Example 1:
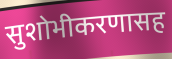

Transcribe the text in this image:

सुशोभीकरणासह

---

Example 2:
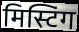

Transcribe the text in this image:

मिस्टिंग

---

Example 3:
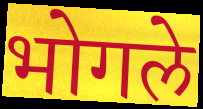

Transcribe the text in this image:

भोगले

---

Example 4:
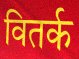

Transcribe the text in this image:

वितर्क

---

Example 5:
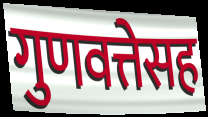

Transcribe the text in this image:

गुणवत्तेसह